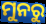
ମୁନରୁ